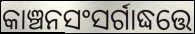
କାଞ୍ଚନସଂସର୍ଗାଦ୍ଧତ୍ତେ